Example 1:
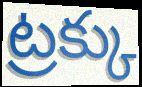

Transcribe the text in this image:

ట్రక్కు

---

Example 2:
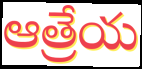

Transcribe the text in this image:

ఆత్రేయ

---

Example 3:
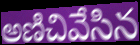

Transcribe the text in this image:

అణిచివేసిన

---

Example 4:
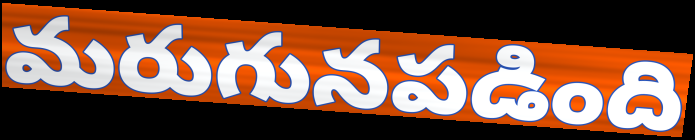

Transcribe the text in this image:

మరుగునపడింది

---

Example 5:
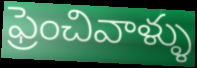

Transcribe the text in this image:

ఫ్రెంచివాళ్ళు